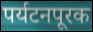
पर्यटनपूरक